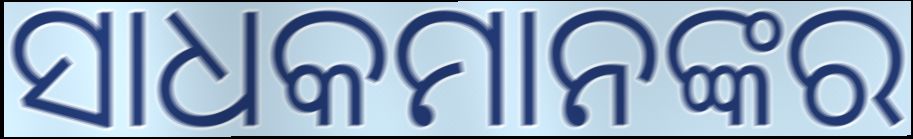
ସାଧକମାନଙ୍କର